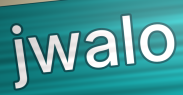
jwalo